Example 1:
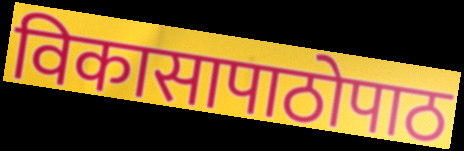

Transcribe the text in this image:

विकासापाठोपाठ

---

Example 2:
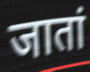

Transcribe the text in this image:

जातां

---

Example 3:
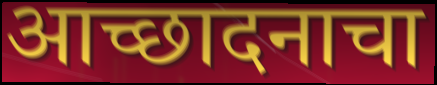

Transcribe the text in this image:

आच्छादनाचा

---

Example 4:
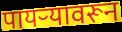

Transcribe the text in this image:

पायऱ्यावरून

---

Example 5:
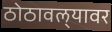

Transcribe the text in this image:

ठोठावल्यावर